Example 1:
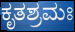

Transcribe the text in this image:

ಕೃತಶ್ರಮಃ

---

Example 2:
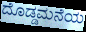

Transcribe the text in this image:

ದೊಡ್ಡಮನೆಯ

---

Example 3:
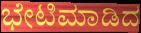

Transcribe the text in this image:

ಭೇಟಿಮಾಡಿದ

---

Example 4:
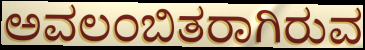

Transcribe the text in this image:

ಅವಲಂಬಿತರಾಗಿರುವ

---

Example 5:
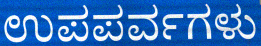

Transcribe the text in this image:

ಉಪಪರ್ವಗಳು